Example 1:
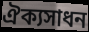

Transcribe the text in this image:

ঐক্যসাধন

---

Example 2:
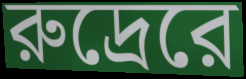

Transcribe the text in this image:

রুদ্রেরে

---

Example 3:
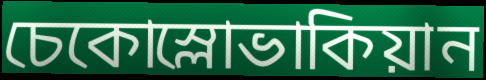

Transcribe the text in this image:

চেকোস্লোভাকিয়ান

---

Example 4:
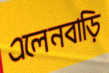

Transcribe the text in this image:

এলেনবাড়ি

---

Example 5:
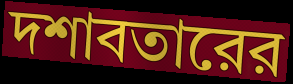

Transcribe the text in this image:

দশাবতারের